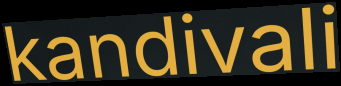
kandivali